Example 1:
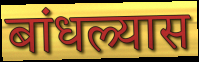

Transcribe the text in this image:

बांधल्यास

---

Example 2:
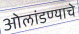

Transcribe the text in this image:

ओलांडण्याचे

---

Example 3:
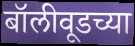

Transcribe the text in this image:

बॉलीवूडच्या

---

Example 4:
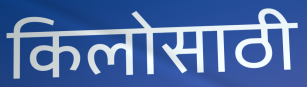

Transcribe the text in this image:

किलोसाठी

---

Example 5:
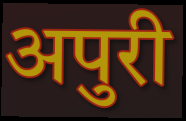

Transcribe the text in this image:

अपुरी